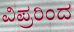
ವಿಪ್ರರಿಂದ